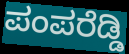
ಪಂಪರೆಡ್ಡಿ